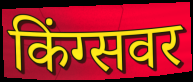
किंग्सवर